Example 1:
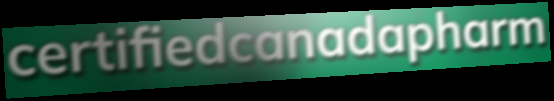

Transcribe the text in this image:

certifiedcanadapharm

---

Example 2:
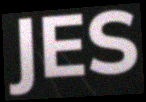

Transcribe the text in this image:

JES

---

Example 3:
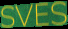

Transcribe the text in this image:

SVES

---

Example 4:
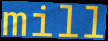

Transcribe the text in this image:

mill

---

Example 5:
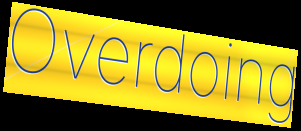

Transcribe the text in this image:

Overdoing